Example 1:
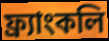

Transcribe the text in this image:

ফ্র্যাংকলি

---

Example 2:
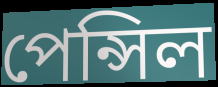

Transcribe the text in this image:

পেন্সিল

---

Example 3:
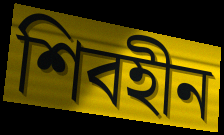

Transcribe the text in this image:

শিবহীন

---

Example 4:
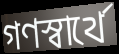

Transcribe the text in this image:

গণস্বার্থে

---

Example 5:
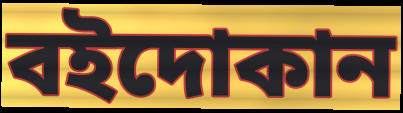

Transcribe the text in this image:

বইদোকান